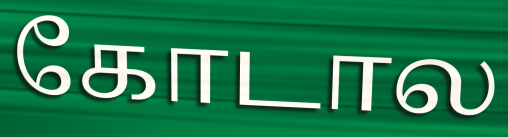
கோடால